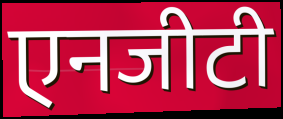
एनजीटी